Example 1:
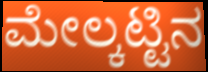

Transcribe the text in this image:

ಮೇಲ್ಕಟ್ಟಿನ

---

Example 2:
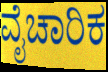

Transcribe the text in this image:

ವೈಚಾರಿಕ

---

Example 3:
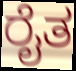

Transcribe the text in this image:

ರೈತ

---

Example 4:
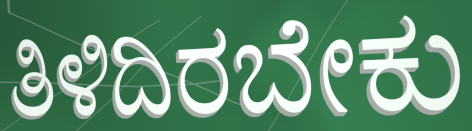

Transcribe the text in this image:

ತಿಳಿದಿರಬೇಕು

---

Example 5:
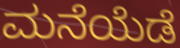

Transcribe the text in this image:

ಮನೆಯೆಡೆ